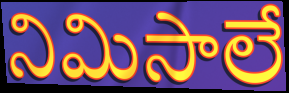
నిమిసాలే